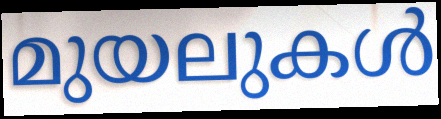
മുയലുകൾ